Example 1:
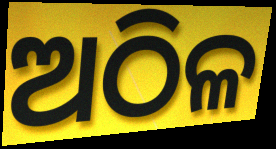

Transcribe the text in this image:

ଅଠିଳ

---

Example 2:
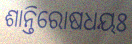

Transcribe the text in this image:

ଶାନ୍ତିରୋଷଧୟଃ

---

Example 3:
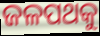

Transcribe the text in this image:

ଜଳପଥକୁ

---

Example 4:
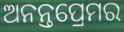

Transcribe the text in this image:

ଅନନ୍ତପ୍ରେମର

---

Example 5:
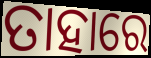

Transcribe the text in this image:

ତାହାରେ